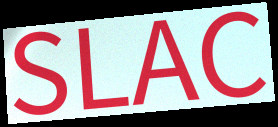
SLAC